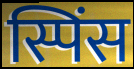
स्पिंस